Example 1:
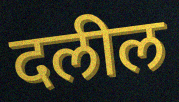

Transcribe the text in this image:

दलील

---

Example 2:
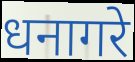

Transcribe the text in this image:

धनागरे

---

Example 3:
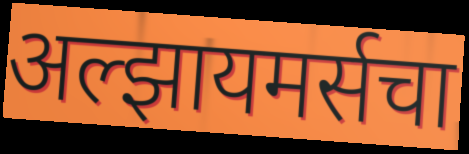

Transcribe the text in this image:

अल्झायमर्सचा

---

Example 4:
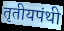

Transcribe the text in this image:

तृतीयपंथी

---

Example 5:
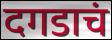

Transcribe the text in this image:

दगडाचं